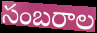
సంబరాల